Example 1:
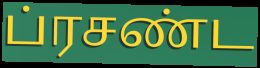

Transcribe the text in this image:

ப்ரசண்ட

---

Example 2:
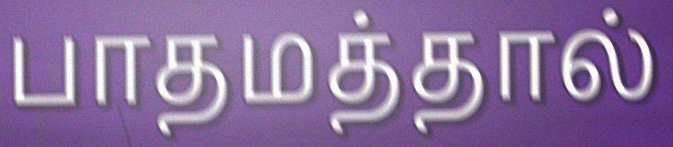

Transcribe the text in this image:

பாதமத்தால்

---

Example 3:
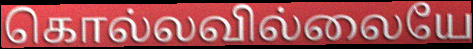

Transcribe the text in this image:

கொல்லவில்லையே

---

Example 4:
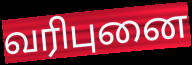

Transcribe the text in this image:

வரிபுனை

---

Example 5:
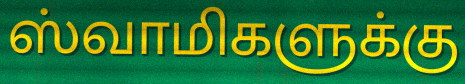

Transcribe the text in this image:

ஸ்வாமிகளுக்கு